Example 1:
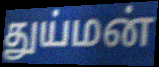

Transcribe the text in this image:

துய்மன்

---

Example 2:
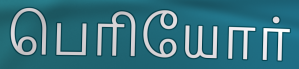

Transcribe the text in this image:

பெரியோர்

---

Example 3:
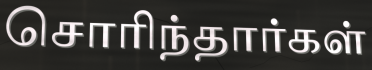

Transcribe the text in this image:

சொரிந்தார்கள்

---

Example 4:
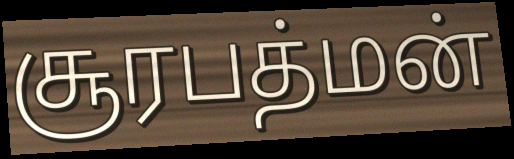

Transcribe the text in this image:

சூரபத்மன்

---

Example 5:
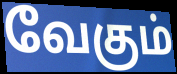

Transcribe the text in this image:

வேகும்